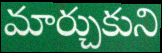
మార్చుకుని